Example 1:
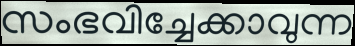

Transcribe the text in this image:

സംഭവിച്ചേക്കാവുന്ന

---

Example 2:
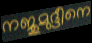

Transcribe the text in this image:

നജുമുദ്ദീനെ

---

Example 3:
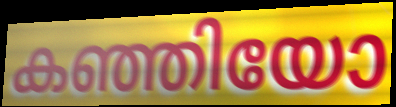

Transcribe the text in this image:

കഞ്ഞിയോ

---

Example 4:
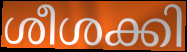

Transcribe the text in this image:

ശീശക്കി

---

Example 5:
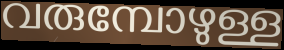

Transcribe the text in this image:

വരുമ്പോഴുള്ള